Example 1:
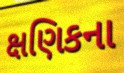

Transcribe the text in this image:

ક્ષણિકના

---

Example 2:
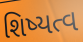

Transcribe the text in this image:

શિષ્યત્વ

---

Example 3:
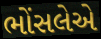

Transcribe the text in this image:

ભોંસલેએ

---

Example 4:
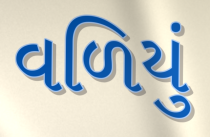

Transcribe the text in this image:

વળિયું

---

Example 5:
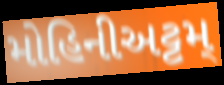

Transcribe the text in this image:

મોહિનીઅટ્ટમ્